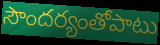
సౌందర్యంతోపాటు